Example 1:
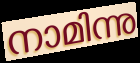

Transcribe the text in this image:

നാമിന്നു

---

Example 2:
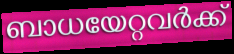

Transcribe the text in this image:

ബാധയേറ്റവർക്ക്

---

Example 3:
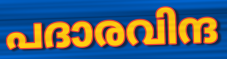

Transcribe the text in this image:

പദാരവിന്ദ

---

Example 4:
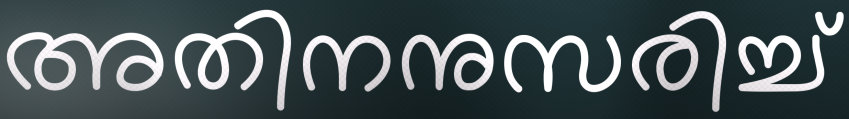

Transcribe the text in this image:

അതിനനുസരിച്ച്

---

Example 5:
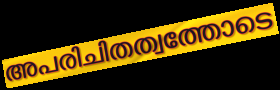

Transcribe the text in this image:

അപരിചിതത്വത്തോടെ